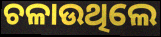
ଚଳାଉଥିଲେ